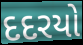
દદરયો